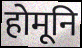
होमूनि